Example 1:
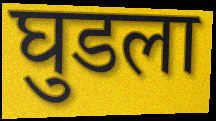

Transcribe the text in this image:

घुडला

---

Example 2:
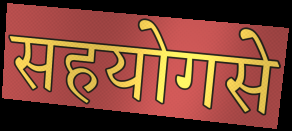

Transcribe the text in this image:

सहयोगसे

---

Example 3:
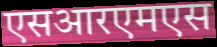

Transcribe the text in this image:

एसआरएमएस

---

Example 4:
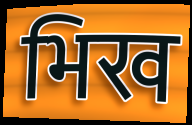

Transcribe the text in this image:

भिख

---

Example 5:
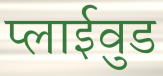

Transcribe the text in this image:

प्‍लाईवुड